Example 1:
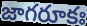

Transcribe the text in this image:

జాగరూకః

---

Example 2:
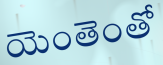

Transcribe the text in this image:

యెంతెంతో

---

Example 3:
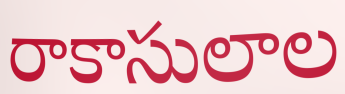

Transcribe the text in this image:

రాకాసులాల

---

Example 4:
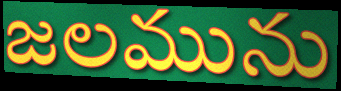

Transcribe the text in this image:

జలమును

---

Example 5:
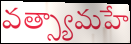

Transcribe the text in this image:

వత్స్యామహే